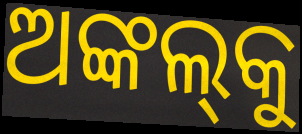
ଅଙ୍କଲ୍‌କୁ